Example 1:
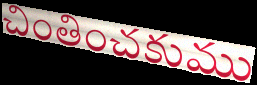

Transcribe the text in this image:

చింతించకుము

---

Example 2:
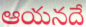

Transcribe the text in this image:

ఆయనదే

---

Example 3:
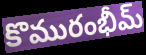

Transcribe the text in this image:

కొమురంభీమ్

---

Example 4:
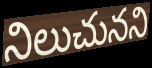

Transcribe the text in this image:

నిలుచునని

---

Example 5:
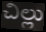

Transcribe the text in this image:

చిల్లు